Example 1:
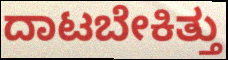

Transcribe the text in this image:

ದಾಟಬೇಕಿತ್ತು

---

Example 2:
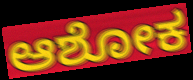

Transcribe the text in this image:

ಆಶೋಕ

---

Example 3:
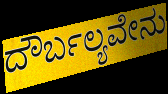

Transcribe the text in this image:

ದೌರ್ಬಲ್ಯವೇನು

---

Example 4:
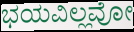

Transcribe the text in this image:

ಭಯವಿಲ್ಲವೋ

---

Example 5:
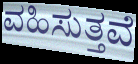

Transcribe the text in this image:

ವಹಿಸುತ್ತವೆ